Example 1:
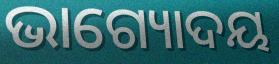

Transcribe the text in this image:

ଭାଗ୍ୟୋଦୟ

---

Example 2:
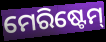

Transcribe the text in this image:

ମେରିଷ୍ଟେମ୍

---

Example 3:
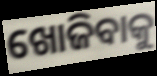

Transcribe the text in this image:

ଖୋଜିବାକୁ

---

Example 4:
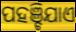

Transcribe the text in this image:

ପହଞ୍ଚିଯାଏ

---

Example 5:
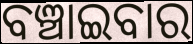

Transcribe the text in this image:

ବଞ୍ଚାଇବାର